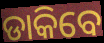
ଡାକିବେ